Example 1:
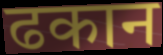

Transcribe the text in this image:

ढकान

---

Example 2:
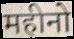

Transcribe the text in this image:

महीनो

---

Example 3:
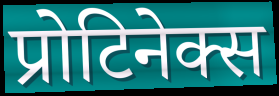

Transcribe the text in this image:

प्रोटिनेक्स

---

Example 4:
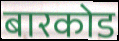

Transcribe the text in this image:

बारकोड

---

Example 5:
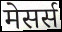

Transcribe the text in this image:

मेसर्स